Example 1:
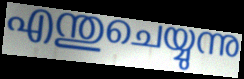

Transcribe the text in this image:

എന്തുചെയ്യുന്നു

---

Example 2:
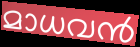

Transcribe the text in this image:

മാധവൻ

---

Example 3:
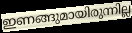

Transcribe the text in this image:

ഇണങ്ങുമായിരുന്നില്ല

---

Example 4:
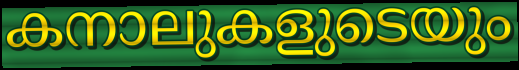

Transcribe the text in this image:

കനാലുകളുടെയും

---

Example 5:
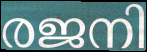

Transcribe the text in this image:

രജനി